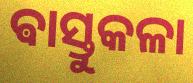
ଵାସ୍ତୁକଳା